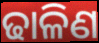
ଢାଳିଣ